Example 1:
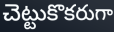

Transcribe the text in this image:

చెట్టుకొకరుగా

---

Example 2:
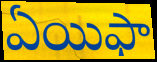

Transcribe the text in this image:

ఏయిఫా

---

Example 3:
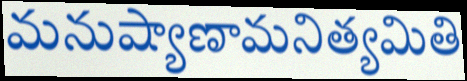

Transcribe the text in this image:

మనుష్యాణామనిత్యమితి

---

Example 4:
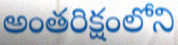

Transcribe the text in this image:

అంతరిక్షంలోని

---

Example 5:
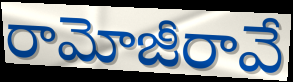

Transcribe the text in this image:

రామోజీరావే